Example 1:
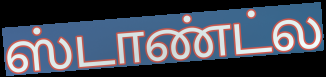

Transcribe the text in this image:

ஸ்டாண்ட்ல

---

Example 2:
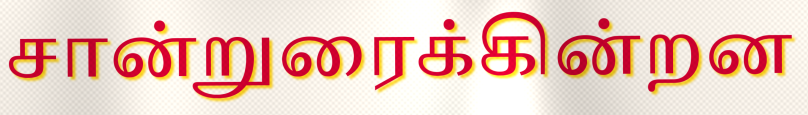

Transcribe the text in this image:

சான்றுரைக்கின்றன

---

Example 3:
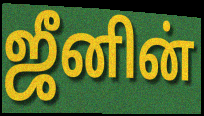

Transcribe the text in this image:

ஜீனின்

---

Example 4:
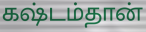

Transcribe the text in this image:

கஷ்டம்தான்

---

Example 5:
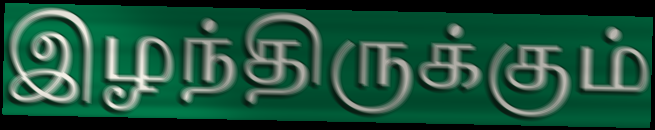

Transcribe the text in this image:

இழந்திருக்கும்